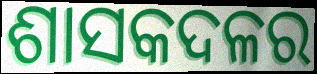
ଶାସକଦଳର